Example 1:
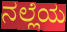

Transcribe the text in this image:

ನಲ್ಲೆಯ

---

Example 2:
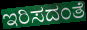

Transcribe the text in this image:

ಇರಿಸದಂತೆ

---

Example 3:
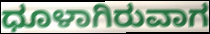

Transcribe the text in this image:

ಧೂಳಾಗಿರುವಾಗ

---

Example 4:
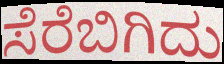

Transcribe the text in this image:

ಸೆರೆಬಿಗಿದು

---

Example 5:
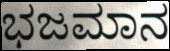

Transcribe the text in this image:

ಭಜಮಾನ